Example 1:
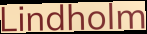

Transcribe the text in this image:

Lindholm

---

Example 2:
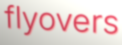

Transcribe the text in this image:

flyovers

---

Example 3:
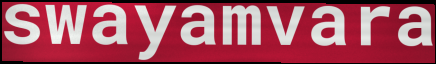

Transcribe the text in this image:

swayamvara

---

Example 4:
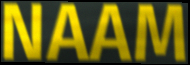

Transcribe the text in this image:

NAAM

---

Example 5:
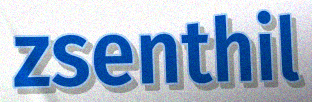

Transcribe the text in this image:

zsenthil